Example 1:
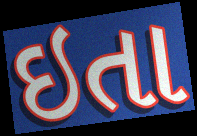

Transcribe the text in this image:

ઇતા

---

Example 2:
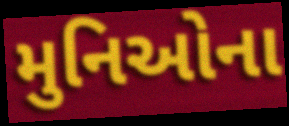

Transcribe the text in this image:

મુનિઓના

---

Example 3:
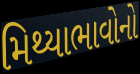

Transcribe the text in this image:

મિથ્યાભાવોનો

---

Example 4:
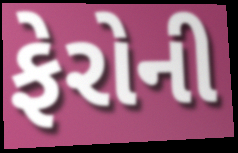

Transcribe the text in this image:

ફેરોની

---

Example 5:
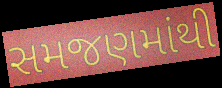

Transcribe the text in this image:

સમજણમાંથી